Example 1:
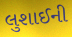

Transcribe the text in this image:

લુશાઈની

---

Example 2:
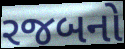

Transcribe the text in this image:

રજબનો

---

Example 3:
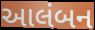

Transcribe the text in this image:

આલંબન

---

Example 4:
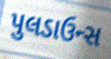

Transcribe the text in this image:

પુલડાઉન્સ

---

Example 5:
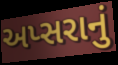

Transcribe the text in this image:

અપ્સરાનું